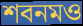
শবনমও